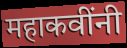
महाकवींनी